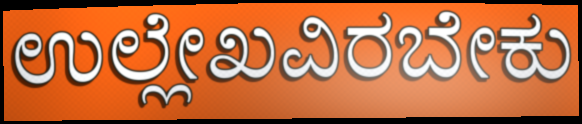
ಉಲ್ಲೇಖವಿರಬೇಕು